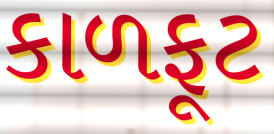
કાળફૂટ